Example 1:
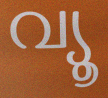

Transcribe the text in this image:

വ്യൂ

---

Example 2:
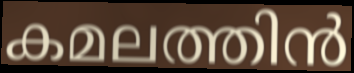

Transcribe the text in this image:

കമലത്തിൻ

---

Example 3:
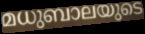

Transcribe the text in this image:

മധുബാലയുടെ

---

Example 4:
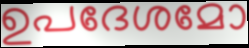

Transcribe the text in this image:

ഉപദേശമോ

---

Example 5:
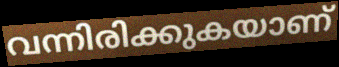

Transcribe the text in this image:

വന്നിരിക്കുകയാണ്